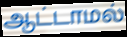
ஆட்டாமல்